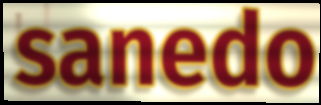
sanedo